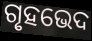
ଗୃହଭେଦ